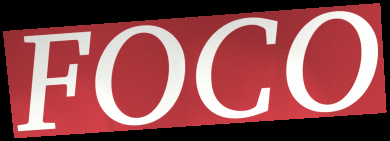
FOCO